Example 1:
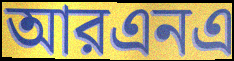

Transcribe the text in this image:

আরএনএ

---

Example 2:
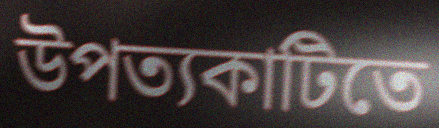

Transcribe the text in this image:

উপত্যকাটিতে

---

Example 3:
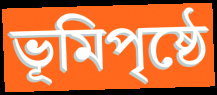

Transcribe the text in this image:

ভূমিপৃষ্ঠে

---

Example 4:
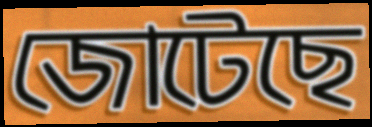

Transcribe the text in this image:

জোটেছে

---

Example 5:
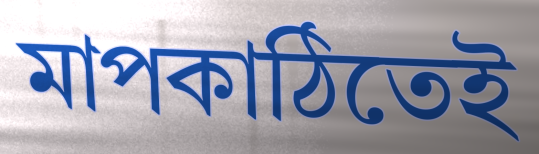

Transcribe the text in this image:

মাপকাঠিতেই